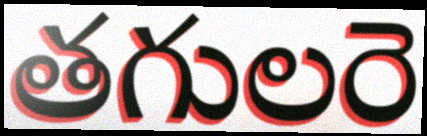
తగులరె